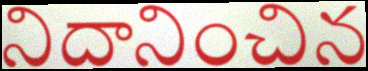
నిదానించిన